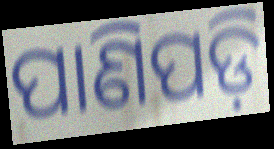
ପାଣିପଡ଼ି